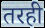
तरही